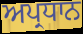
ਅਪ੍ਰਧਾਨ